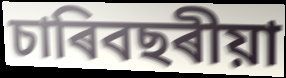
চাৰিবছৰীয়া